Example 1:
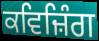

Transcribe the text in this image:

ਕਵਿਜ਼ਿੰਗ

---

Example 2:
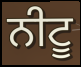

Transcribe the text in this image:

ਨੀਟੂ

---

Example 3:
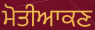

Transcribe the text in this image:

ਮੋਤੀਆਕਣ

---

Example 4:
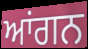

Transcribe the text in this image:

ਆਂਗਨ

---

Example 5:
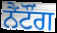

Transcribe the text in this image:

ਨੈਂਟੌਂਗ